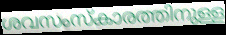
ശവസംസ്കാരത്തിനുള്ള